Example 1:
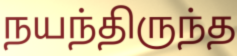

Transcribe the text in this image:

நயந்திருந்த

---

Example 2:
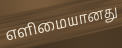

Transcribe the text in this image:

எளிமையானது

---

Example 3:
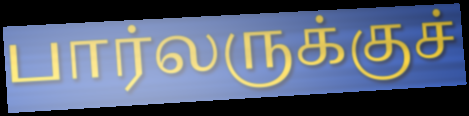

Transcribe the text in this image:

பார்லருக்குச்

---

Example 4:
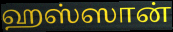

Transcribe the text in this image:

ஹஸ்ஸான்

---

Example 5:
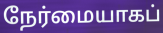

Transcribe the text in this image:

நேர்மையாகப்